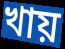
খায়